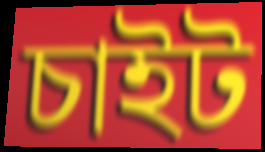
চাইট